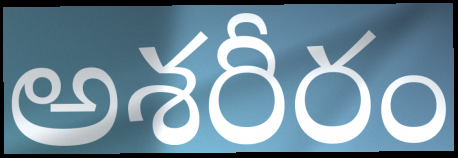
అశరీరం